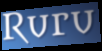
Ruru